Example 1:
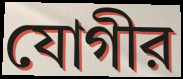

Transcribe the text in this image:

যোগীর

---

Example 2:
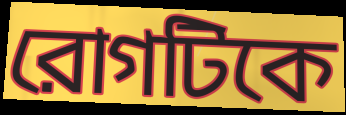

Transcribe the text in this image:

রোগটিকে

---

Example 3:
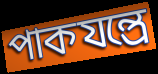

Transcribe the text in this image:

পাকযন্ত্রে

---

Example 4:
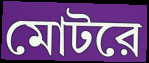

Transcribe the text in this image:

মোটরে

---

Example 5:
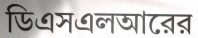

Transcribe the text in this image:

ডিএসএলআরের